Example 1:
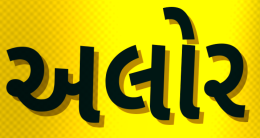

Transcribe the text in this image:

અલોર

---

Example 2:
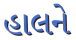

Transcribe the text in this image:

હાલને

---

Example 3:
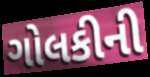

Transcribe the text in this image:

ગોલકીની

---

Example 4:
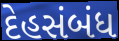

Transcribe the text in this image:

દેહસંબંધ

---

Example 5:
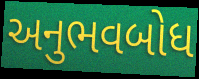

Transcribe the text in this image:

અનુભવબોધ